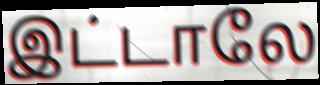
இட்டாலே